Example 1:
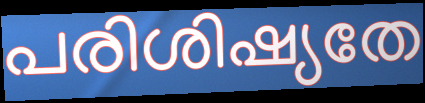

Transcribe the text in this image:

പരിശിഷ്യതേ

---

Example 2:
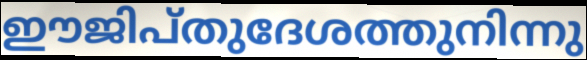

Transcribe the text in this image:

ഈജിപ്തുദേശത്തുനിന്നു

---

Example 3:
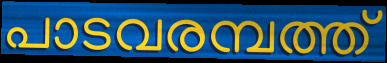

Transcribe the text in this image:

പാടവരമ്പത്ത്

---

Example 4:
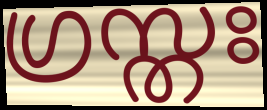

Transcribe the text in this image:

ഗ്രസ്തഃ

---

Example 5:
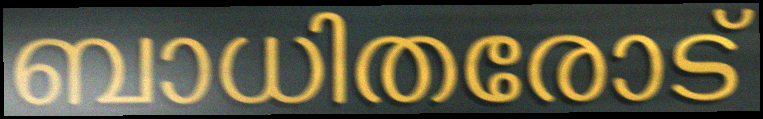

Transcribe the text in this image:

ബാധിതരോട്